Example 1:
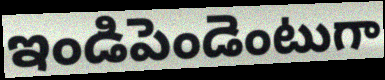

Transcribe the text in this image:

ఇండిపెండెంటుగా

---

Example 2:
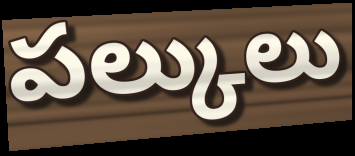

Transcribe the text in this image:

పల్కులు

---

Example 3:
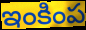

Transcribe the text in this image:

ఇంకింప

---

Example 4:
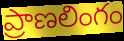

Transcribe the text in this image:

ప్రాణలింగం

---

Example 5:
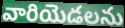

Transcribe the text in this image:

వారియెడలను